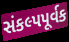
સંકલ્પપૂર્વક